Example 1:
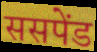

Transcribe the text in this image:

ससपेंड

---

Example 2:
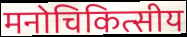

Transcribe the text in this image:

मनोचिकित्सीय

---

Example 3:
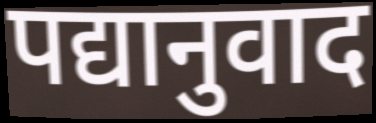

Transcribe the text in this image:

पद्यानुवाद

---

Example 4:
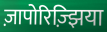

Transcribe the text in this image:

ज़ापोरिज़्झिया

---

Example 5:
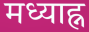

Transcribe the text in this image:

मध्याह्न